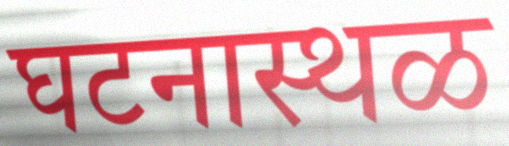
घटनास्थळ